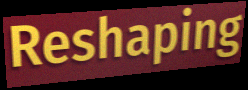
Reshaping